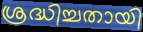
ശ്രദ്ധിച്ചതായി